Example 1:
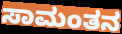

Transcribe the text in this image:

ಸಾಮಂತನ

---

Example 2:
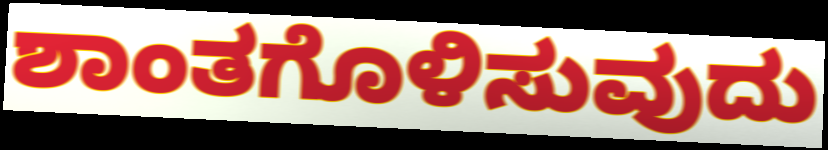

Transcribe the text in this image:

ಶಾಂತಗೊಳಿಸುವುದು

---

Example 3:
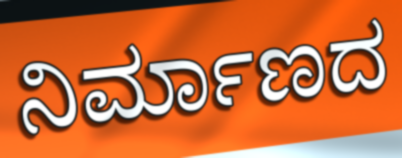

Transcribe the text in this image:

ನಿರ್ಮಾಣದ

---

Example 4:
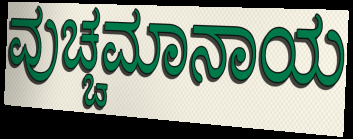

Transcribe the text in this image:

ವುಚ್ಚಮಾನಾಯ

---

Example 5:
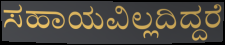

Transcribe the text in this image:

ಸಹಾಯವಿಲ್ಲದಿದ್ದರೆ